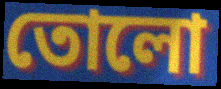
তোলো